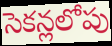
సెకన్లలోపు